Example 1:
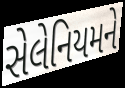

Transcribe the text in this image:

સેલેનિયમને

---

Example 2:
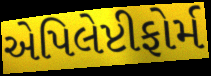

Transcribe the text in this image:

એપિલેપ્ટીફોર્મ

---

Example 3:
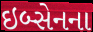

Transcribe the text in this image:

ઇબ્સેનના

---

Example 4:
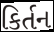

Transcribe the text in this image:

કિર્તન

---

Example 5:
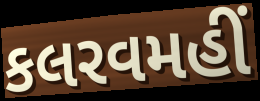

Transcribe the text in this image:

કલરવમહીં